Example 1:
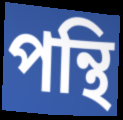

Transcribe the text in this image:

পন্থি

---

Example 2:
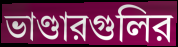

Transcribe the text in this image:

ভাণ্ডারগুলির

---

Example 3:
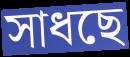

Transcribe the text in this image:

সাধছে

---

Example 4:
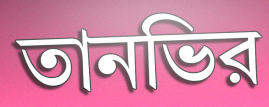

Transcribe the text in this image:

তানভির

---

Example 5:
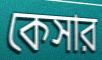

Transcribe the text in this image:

কেসার